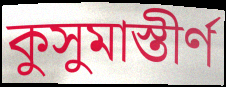
কুসুমাস্তীর্ণ